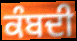
ਕੰਬਦੀ